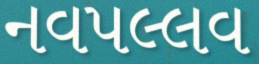
નવપલ્લવ